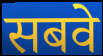
सबवे